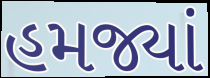
હમજ્યાં